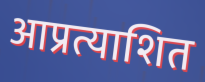
आप्रत्याशित